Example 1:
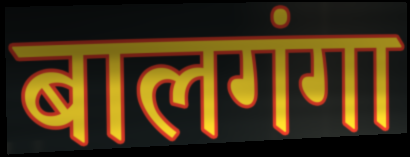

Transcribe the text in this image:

बालगंगा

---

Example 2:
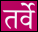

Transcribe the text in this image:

तर्वे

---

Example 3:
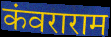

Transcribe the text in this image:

कंवराराम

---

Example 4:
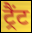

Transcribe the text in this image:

ट्रैंट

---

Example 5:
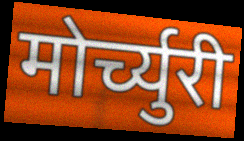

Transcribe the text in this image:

मोर्च्युरी